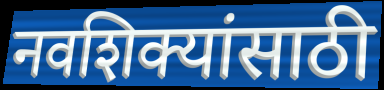
नवशिक्यांसाठी